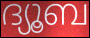
ദ്യൂബ